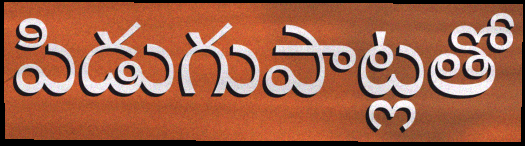
పిడుగుపాట్లతో